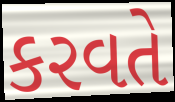
કરવતે